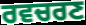
ਰਵਚਰਣ